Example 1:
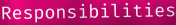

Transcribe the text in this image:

Responsibilities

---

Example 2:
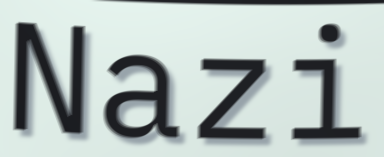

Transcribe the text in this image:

Nazi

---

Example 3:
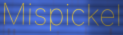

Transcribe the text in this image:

Mispickel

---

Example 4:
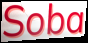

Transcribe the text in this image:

Soba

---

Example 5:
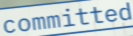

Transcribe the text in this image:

committed